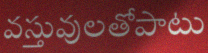
వస్తువులతోపాటు